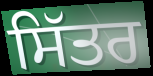
ਸਿੱਤਰ